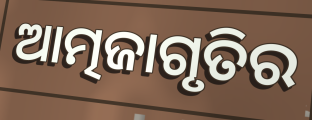
ଆତ୍ମଜାଗୃତିର